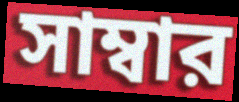
সাম্বার